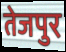
तेजपुर